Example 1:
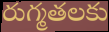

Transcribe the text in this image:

రుగ్మతలకు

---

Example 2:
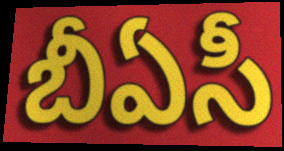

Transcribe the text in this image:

బీఏసీ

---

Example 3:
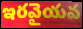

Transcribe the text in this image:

ఇరవైయవ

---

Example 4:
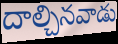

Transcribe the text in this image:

దాల్చినవాడు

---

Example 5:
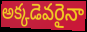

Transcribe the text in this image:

అక్కడెవరైనా